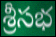
శ్రీసభ